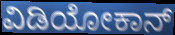
ವಿಡಿಯೋಕಾನ್